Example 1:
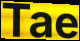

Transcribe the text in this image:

Tae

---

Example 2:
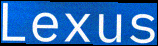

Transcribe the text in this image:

Lexus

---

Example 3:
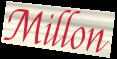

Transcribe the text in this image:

Millon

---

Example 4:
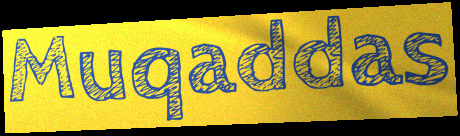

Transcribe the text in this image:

Muqaddas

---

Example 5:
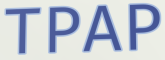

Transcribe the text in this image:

TPAP